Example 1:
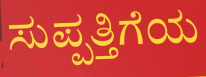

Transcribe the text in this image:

ಸುಪ್ಪತ್ತಿಗೆಯ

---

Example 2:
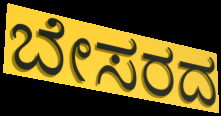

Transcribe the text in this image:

ಬೇಸರದ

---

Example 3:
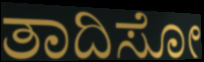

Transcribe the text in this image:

ತಾದಿಸೋ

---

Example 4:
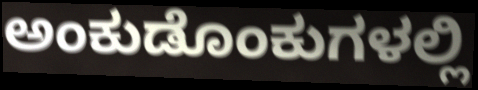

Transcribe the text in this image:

ಅಂಕುಡೊಂಕುಗಳಲ್ಲಿ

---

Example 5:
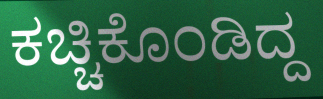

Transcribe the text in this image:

ಕಚ್ಚಿಕೊಂಡಿದ್ದ